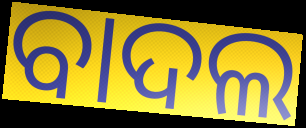
ବାଦଲ